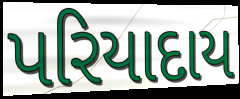
પરિયાદાય